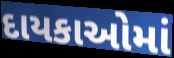
દાયકાઓમાં